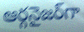
ఆర్గనైజర్‌గా